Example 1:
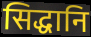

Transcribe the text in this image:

सिद्धानि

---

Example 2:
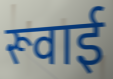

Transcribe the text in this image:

रूवाई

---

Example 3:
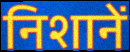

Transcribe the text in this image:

निशानें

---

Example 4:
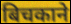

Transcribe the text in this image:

बिचकाने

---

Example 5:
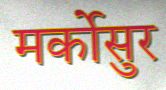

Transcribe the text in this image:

मर्कोसुर